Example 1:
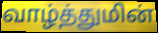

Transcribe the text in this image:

வாழ்த்துமின்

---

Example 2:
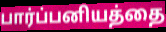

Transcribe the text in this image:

பார்ப்பனியத்தை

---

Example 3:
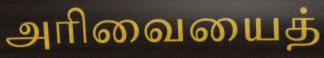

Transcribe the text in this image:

அரிவையைத்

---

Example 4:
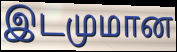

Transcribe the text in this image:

இடமுமான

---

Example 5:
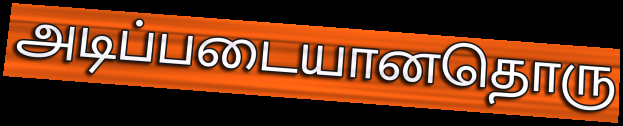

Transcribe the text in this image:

அடிப்படையானதொரு